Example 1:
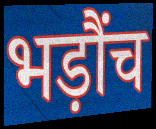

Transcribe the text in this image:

भड़ौंच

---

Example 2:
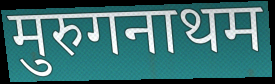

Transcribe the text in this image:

मुरुगनाथम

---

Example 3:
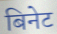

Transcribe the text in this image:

बिनेट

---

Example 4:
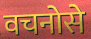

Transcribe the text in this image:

वचनोसे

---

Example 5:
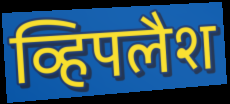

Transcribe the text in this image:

व्हिपलैश